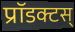
प्रॉडक्टस्